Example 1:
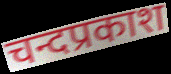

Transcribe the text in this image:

चन्दप्रकाश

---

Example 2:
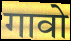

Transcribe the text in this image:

गावो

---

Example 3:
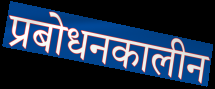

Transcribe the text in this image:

प्रबोधनकालीन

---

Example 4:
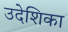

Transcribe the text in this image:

उदेशिका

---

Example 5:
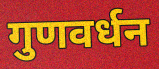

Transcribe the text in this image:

गुणवर्धन